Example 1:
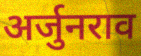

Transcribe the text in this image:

अर्जुनराव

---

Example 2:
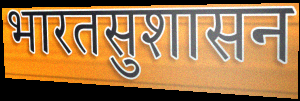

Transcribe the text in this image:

भारतसुशासन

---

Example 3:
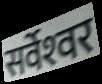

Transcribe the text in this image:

सर्वेश्‍वर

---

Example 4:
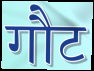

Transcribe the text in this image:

गौट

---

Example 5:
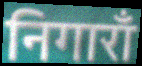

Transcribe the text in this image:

निगाराँ